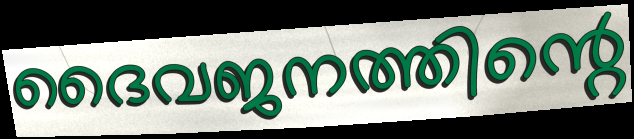
ദൈവജനത്തിന്റെ